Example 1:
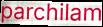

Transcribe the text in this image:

parchilam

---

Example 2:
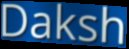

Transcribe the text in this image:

Daksh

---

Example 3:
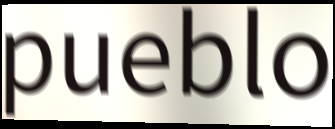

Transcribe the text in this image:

pueblo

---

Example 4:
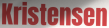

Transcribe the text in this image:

Kristensen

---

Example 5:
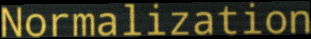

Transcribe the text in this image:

Normalization